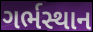
ગર્ભસ્થાન